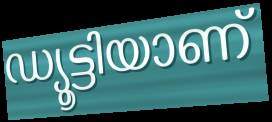
ഡ്യൂട്ടിയാണ്